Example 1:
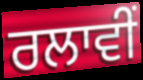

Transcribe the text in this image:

ਰਲਾਵੀਂ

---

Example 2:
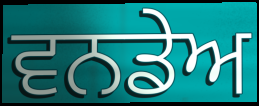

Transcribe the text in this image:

ਵਨਡੇਅ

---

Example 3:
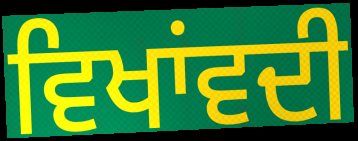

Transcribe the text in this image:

ਵਿਖਾਂਵਦੀ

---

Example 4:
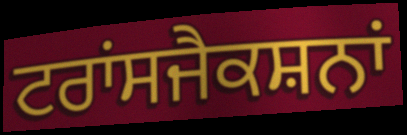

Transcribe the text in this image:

ਟਰਾਂਸਜੈਕਸ਼ਨਾਂ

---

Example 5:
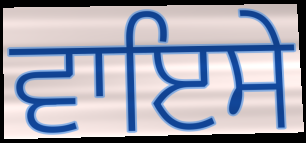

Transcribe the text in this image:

ਵਾਇਸੇ